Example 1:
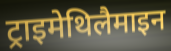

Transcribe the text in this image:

ट्राइमेथिलैमाइन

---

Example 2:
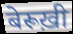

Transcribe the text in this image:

बेरूख़ी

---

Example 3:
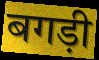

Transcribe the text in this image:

बगड़ी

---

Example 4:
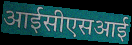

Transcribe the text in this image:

आईसीएसआई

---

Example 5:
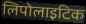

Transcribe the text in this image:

लिपोलाइटिक